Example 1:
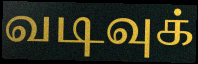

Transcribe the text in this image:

வடிவுக்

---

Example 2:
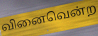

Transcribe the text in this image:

வினைவென்ற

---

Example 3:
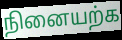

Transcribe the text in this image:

நினையற்க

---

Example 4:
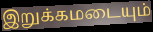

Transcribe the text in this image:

இறுக்கமடையும்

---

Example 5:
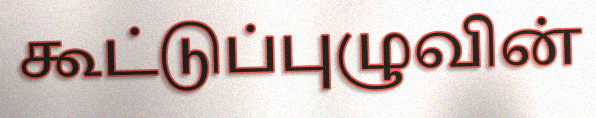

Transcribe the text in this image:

கூட்டுப்புழுவின்